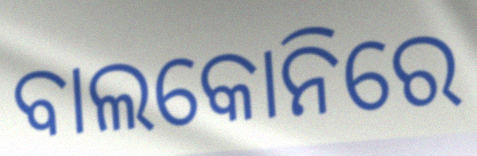
ବାଲକୋନିରେ